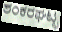
ಶಂಕರಘಟ್ಟ